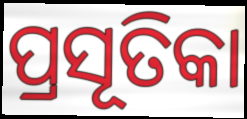
ପ୍ରସୂତିକା